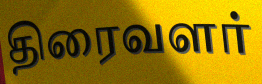
திரைவளர்